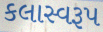
કલાસ્વરૂપ